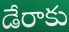
డేరాకు